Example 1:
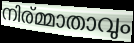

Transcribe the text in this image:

നിര്മ്മാതാവും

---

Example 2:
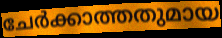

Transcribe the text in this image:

ചേർക്കാത്തതുമായ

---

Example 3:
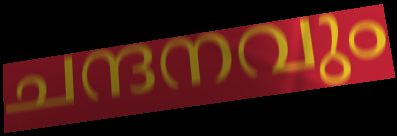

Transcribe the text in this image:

ചന്ദനവും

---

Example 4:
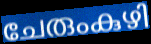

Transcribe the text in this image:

ചേരുംകുഴി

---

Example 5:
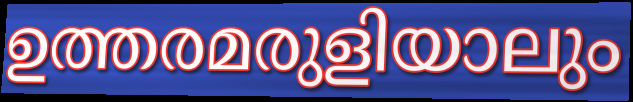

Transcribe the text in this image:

ഉത്തരമരുളിയാലും